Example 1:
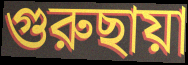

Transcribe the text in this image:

গুরুছায়া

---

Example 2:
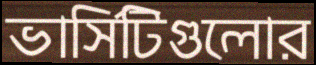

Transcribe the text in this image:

ভার্সিটিগুলোর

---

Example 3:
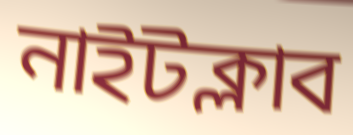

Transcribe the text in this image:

নাইটক্লাব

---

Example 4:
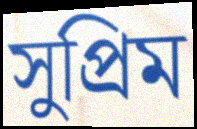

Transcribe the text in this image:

সুপ্রিম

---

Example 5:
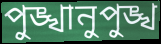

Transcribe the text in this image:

পুঙ্খানুপুঙ্খ